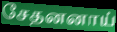
சேதனனாய்